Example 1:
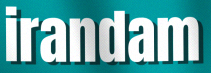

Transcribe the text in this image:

irandam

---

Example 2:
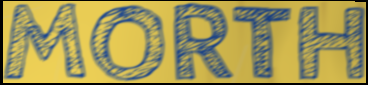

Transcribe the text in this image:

MORTH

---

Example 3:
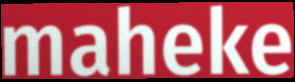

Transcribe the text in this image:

maheke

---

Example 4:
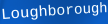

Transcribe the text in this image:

Loughborough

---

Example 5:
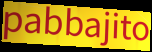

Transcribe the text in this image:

pabbajito